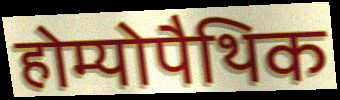
होम्‍योपैथिक